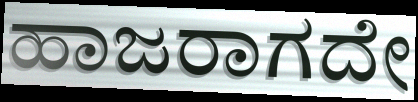
ಹಾಜರಾಗದೇ